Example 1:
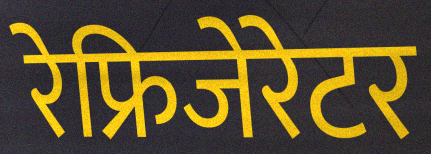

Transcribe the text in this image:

रेफ्रिजेरेटर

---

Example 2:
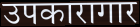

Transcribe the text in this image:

उपकारागार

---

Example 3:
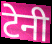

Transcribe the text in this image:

टेनी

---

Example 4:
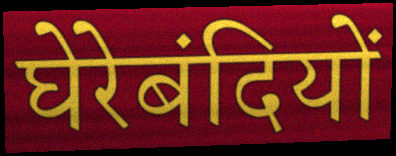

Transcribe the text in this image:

घेरेबंदियों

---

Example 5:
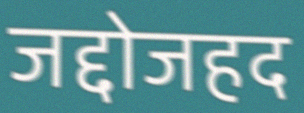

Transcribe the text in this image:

जद्दोजहद